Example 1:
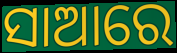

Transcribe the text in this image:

ସାଆରେ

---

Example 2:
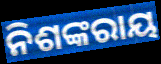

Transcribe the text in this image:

ନିଶଙ୍କରାୟ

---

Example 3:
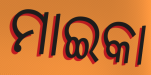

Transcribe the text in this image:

ମାଇକା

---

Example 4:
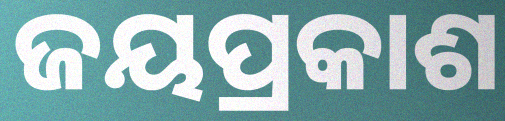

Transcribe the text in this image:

ଜୟପ୍ରକାଶ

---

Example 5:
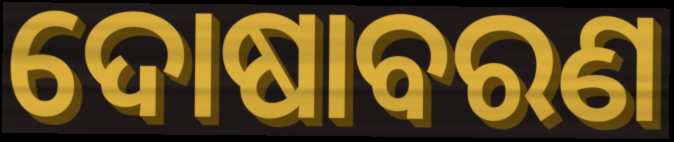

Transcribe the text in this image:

ଦୋଷାବରଣ